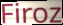
Firoz